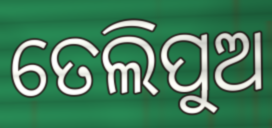
ତେଲିପୁଅ